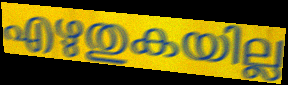
എഴുതുകയില്ല